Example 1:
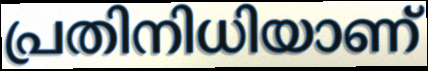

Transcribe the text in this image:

പ്രതിനിധിയാണ്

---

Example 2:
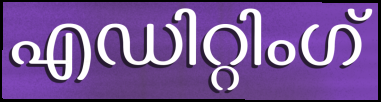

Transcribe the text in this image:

എഡിറ്റിംഗ്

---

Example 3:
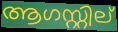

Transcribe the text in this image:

ആഗസ്റ്റില്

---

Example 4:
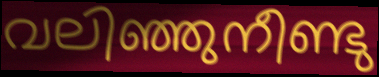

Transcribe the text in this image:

വലിഞ്ഞുനീണ്ടു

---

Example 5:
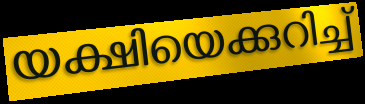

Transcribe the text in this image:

യക്ഷിയെക്കുറിച്ച്